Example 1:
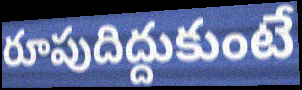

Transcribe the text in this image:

రూపుదిద్దుకుంటే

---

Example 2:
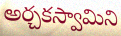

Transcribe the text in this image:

అర్చకస్వామిని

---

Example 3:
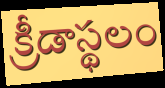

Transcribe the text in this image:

క్రీడాస్థలం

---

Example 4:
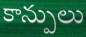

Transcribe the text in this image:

కాన్పులు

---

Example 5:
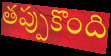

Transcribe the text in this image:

తప్పుకొంది